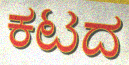
ಕಟದ